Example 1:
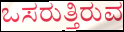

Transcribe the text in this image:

ಒಸರುತ್ತಿರುವ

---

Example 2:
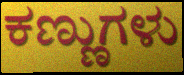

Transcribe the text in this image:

ಕಣ್ಣುಗಳು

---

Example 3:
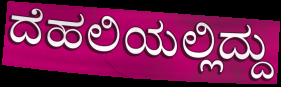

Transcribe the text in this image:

ದೆಹಲಿಯಲ್ಲಿದ್ದು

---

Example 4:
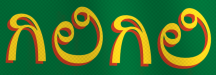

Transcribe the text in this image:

ಗಿಲಿಗಿಲಿ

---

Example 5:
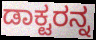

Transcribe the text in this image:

ಡಾಕ್ಟರನ್ನ